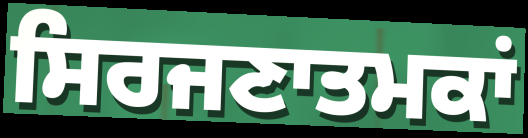
ਸਿਰਜਣਾਤਮਕਾਂ